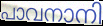
പാവനാനി